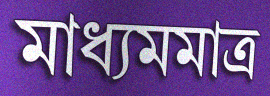
মাধ্যমমাত্র